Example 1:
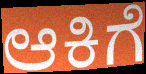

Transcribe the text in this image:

ಆಕಿಗೆ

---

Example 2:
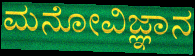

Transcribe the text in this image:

ಮನೋವಿಜ್ಞಾನ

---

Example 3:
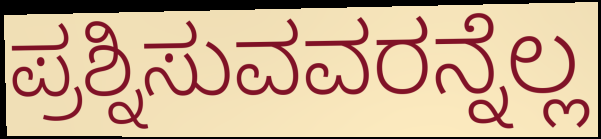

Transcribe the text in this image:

ಪ್ರಶ್ನಿಸುವವರನ್ನೆಲ್ಲ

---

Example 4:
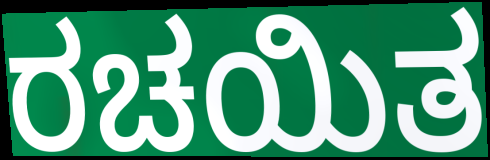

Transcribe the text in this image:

ರಚಯಿತ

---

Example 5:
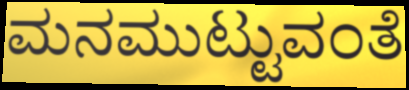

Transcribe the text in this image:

ಮನಮುಟ್ಟುವಂತೆ